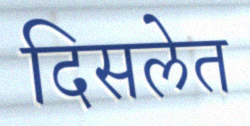
दिसलेत